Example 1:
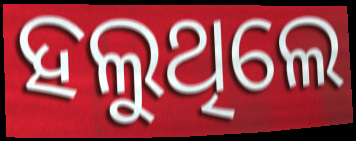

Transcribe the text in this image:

ହଲୁଥିଲେ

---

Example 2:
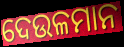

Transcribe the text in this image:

ଦେଉଳମାନ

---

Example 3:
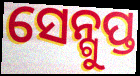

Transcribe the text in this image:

ସେନ୍ଗୁପ୍ତ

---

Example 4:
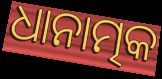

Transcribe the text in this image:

ଧାନାତ୍ମକ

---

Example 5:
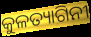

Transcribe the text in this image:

କୁଳତ୍ୟାଗିନୀ